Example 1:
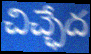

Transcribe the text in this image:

చిచ్ఛేద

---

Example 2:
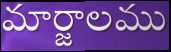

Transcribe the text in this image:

మార్జాలము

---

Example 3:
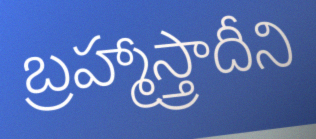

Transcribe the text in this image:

బ్రహ్మాస్త్రాదీని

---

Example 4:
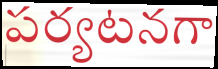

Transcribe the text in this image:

పర్యటనగా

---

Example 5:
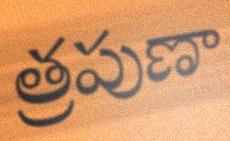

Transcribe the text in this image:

త్రపుణా